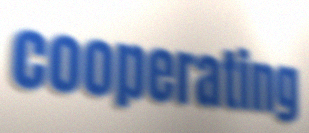
cooperating